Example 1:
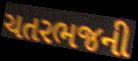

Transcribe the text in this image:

ચતરભજની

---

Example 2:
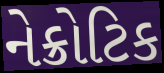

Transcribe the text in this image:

નેક્રોટિક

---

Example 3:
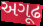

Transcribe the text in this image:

અગૂઢ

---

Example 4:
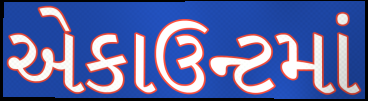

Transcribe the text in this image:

એકાઉન્ટમાં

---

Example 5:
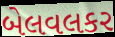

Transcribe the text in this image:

બેલવલકર